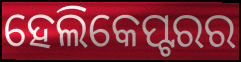
ହେଲିକେପ୍ଟରର